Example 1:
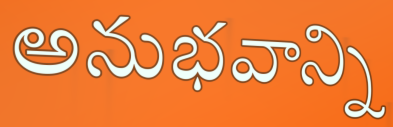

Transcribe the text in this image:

అనుభవాన్ని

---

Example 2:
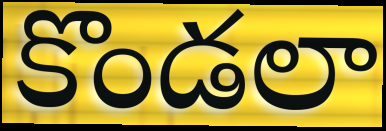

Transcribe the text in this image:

కొండలా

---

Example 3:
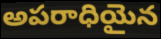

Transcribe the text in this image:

అపరాధియైన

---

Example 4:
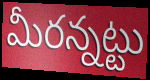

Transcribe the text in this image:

మీరన్నట్టు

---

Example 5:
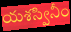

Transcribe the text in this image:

యశస్వినీం